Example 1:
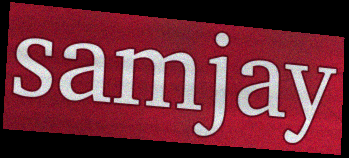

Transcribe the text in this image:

samjay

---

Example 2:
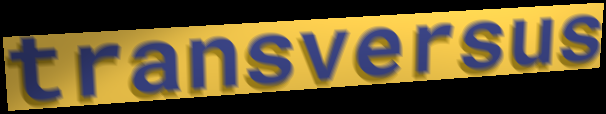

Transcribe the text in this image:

transversus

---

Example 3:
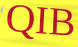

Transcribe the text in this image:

QIB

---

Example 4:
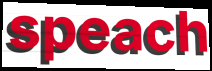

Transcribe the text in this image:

speach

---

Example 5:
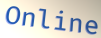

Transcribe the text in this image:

Online